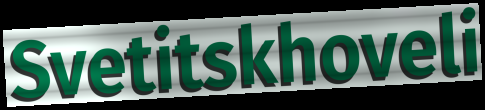
Svetitskhoveli